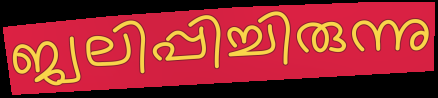
ജ്വലിപ്പിച്ചിരുന്നു